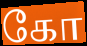
கோ